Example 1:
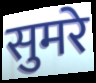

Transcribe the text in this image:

सुमरे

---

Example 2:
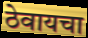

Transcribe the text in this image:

ठेवायचा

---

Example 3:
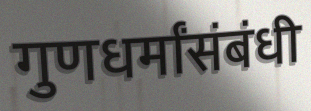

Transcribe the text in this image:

गुणधर्मांसंबंधी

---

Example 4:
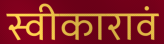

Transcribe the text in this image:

स्वीकारावं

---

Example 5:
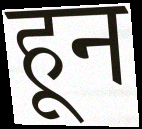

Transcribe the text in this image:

हून